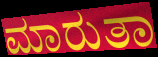
ಮಾರುತಾ